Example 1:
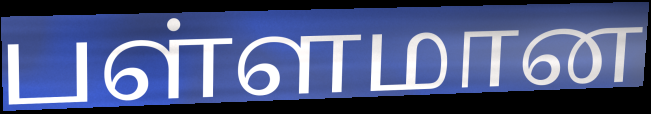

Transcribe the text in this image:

பள்ளமான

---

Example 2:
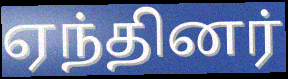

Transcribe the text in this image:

ஏந்தினர்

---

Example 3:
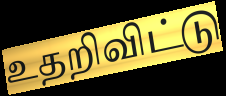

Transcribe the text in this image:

உதறிவிட்டு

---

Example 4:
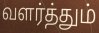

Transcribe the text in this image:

வளர்த்தும்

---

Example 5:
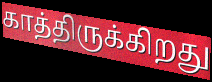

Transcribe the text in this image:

காத்திருக்கிறது